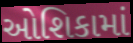
ઓશિકામાં